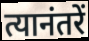
त्यानंतरें